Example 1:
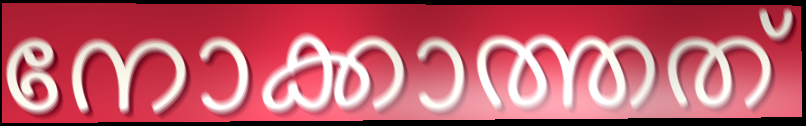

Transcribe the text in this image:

നോക്കാത്തത്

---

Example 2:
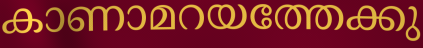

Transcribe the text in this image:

കാണാമറയത്തേക്കു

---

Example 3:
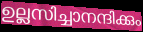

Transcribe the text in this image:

ഉല്ലസിച്ചാനന്ദിക്കും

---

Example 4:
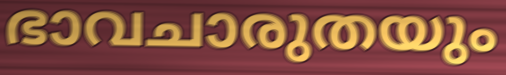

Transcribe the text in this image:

ഭാവചാരുതയും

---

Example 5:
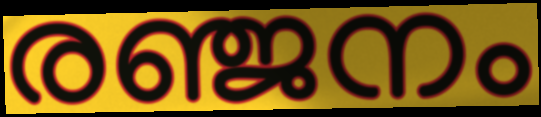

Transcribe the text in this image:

രഞ്ജനം